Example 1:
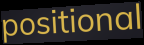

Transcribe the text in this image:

positional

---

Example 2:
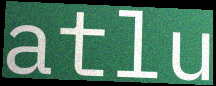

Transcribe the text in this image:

atlu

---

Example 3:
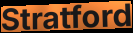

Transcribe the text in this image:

Stratford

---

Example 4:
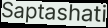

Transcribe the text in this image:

Saptashati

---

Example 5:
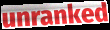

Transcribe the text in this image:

unranked